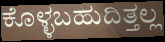
ಕೊಳ್ಳಬಹುದಿತ್ತಲ್ಲ